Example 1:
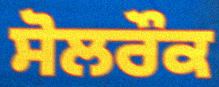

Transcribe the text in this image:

ਸੋਲਰੌਕ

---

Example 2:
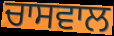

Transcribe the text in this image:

ਚਾਸਵਾਲ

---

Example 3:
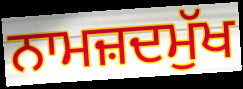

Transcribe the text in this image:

ਨਾਮਜ਼ਦਮੁੱਖ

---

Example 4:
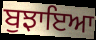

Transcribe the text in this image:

ਬੁਝਾਇਆ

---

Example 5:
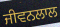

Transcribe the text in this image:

ਜੀਵਨਲਾਲ